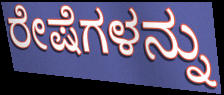
ರೇಷೆಗಳನ್ನು